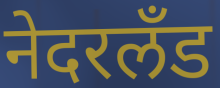
नेदरलँड